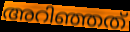
അറിഞ്ഞത്